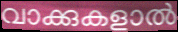
വാക്കുകളാൽ